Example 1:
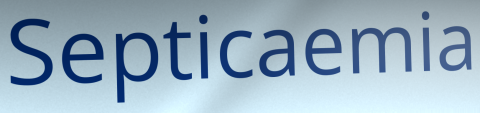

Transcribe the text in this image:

Septicaemia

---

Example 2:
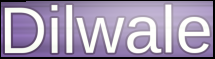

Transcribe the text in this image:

Dilwale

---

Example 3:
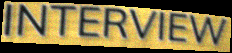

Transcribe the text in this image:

INTERVIEW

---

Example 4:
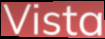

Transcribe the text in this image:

Vista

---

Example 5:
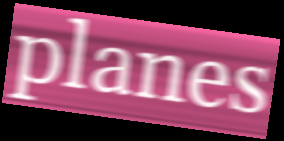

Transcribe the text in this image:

planes